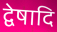
द्वेषादि